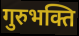
गुरुभक्ति